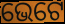
ଭେଟେ